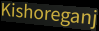
Kishoreganj